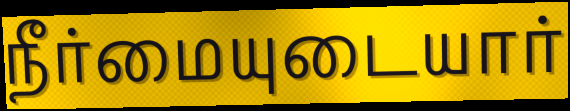
நீர்மையுடையார்